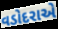
વડોદરાએ